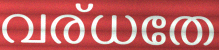
വര്ധതേ